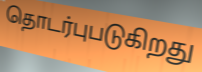
தொடர்புபடுகிறது